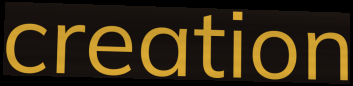
creation